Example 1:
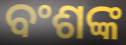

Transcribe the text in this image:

ବଂଶଙ୍କ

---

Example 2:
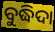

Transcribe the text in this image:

ବୁଦ୍ଧିଦା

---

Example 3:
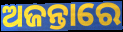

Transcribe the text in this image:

ଅଜନ୍ତାରେ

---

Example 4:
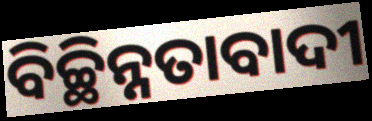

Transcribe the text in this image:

ବିଚ୍ଛିନ୍ନତାବାଦୀ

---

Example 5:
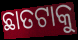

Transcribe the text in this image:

ଛାତଟାକୁ